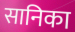
सानिका